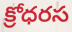
క్రోధరస